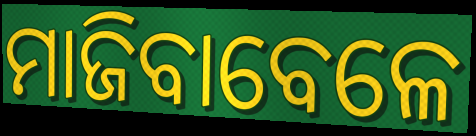
ମାଜିବାବେଳେ